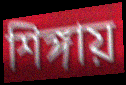
শিঙ্গায়